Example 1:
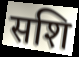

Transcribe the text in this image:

सशि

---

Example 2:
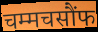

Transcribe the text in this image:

चम्मचसौंफ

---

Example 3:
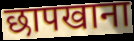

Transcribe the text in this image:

छापखाना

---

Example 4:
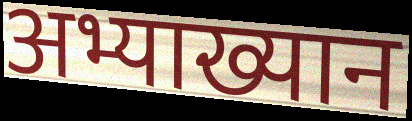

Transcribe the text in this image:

अभ्याख्यान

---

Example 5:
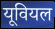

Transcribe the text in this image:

यूवियल